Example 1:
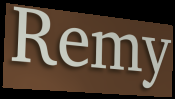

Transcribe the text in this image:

Remy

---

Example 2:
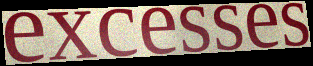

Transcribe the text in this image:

excesses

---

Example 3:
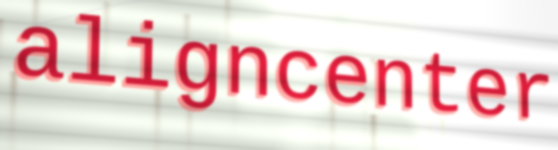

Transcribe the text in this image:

aligncenter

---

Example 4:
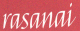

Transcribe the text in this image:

rasanai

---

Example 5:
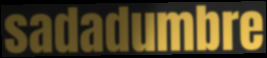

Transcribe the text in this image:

sadadumbre